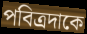
পবিত্রদাকে